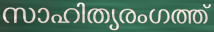
സാഹിത്യരംഗത്ത്